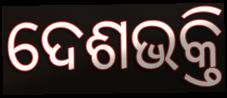
ଦେଶଭକ୍ତି